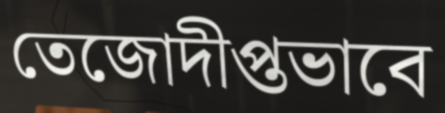
তেজোদীপ্তভাবে